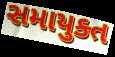
સમાયુક્ત